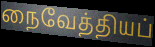
நைவேத்தியப்